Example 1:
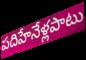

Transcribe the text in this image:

పదిహేనేళ్లపాటు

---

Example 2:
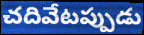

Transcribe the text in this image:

చదివేటప్పుడు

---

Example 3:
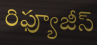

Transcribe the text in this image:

రిఫ్యూజీస్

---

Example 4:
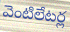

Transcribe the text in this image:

వెంటిలేటర్ల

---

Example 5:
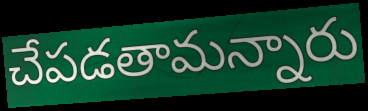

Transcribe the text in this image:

చేపడతామన్నారు